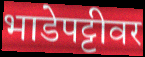
भाडेपट्टीवर